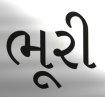
ભૂરી